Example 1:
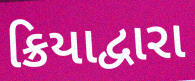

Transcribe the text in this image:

ક્રિયાદ્વારા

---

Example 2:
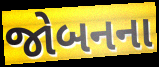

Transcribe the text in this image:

જોબનના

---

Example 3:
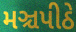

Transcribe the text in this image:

મઞ્ચપીઠે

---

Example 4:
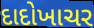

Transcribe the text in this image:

દાદોખાચર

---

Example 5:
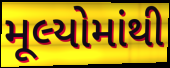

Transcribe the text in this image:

મૂલ્યોમાંથી